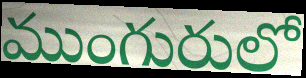
ముంగురులో